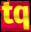
tq